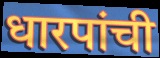
धारपांची